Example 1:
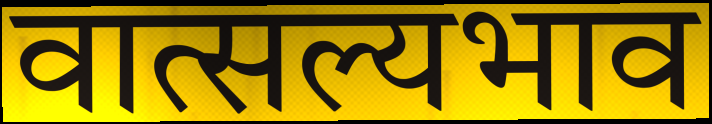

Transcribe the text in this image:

वात्सल्यभाव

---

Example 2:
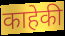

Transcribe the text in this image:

काहेकी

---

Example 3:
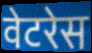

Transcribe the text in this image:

वेटरेस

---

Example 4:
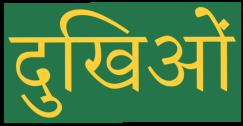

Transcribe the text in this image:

दुखिओं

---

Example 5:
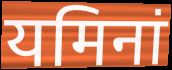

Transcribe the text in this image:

यमिनां